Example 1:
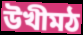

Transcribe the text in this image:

উখীমঠ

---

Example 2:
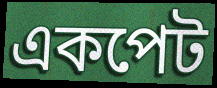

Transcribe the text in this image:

একপেট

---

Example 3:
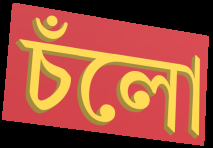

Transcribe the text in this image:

চঁলো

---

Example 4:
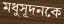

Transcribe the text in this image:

মধুসূদনকে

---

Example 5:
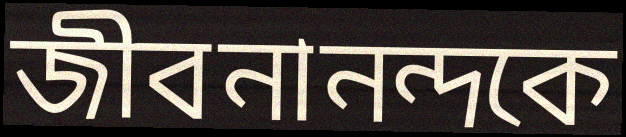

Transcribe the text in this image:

জীবনানন্দকে